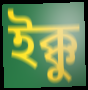
ইক্কু